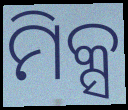
ମିକ୍ସ